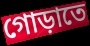
গোড়াতে